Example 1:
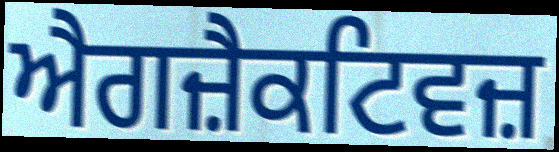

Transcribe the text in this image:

ਐਗਜ਼ੈਕਟਿਵਜ਼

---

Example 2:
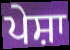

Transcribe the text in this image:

ਪੇਸ਼ਾ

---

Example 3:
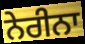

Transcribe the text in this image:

ਨੇਰੀਨਾ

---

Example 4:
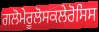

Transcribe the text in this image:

ਗਲੋਮੇਰੂਲੋਸਕਲੇਰੋਸਿਸ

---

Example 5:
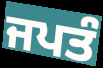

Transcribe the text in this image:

ਜਪਤੰ